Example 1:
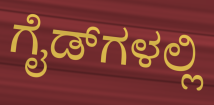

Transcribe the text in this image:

ಗೈಡ್‌ಗಳಲ್ಲಿ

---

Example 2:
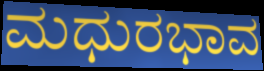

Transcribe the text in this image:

ಮಧುರಭಾವ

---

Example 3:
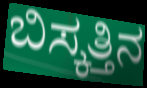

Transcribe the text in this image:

ಬಿಸ್ಕತ್ತಿನ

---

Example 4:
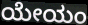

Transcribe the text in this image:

ಯೇಯಂ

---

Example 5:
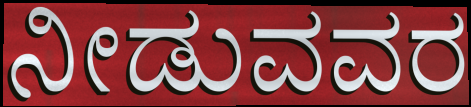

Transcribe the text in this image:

ನೀಡುವವರ